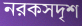
নরকসদৃশ